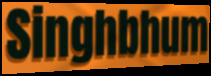
Singhbhum